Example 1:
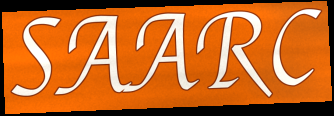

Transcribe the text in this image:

SAARC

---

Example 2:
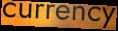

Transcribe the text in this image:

currency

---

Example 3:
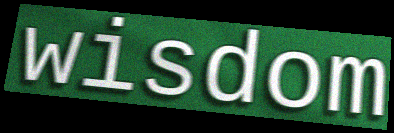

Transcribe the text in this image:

wisdom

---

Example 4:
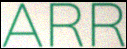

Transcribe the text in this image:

ARR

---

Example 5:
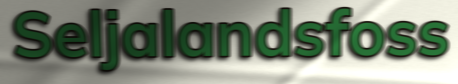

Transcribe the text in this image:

Seljalandsfoss